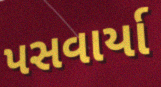
પસવાર્યા